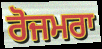
ਰੋਜਮਰਾ